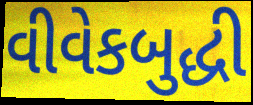
વીવેકબુદ્ધી